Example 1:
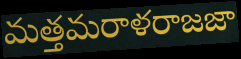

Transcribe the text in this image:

మత్తమరాళరాజజా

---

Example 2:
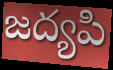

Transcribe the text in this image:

జద్యపి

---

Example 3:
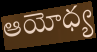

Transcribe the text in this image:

ఆయోధ్య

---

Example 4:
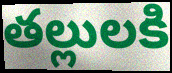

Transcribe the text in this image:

తల్లులకి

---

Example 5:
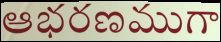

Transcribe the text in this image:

ఆభరణముగా